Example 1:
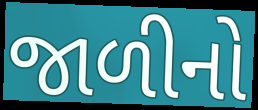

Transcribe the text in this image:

જાળીનો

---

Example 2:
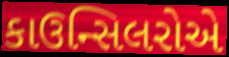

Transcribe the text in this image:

કાઉન્સિલરોએ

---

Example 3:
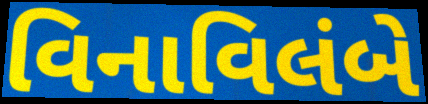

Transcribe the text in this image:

વિનાવિલંબે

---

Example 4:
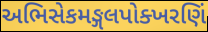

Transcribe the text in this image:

અભિસેકમઙ્ગલપોક્ખરણિં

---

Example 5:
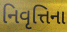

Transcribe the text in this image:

નિવૃત્તિના